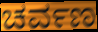
ಚರ್ವಣ